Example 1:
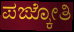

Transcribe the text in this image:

ಪಙ್ಕೋತಿ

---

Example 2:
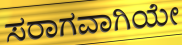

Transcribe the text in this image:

ಸರಾಗವಾಗಿಯೇ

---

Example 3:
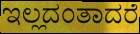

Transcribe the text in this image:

ಇಲ್ಲದಂತಾದರೆ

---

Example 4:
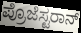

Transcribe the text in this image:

ಪ್ರೊಜೆಸ್ಟರಾನ್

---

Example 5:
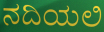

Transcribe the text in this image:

ನದಿಯಲಿ